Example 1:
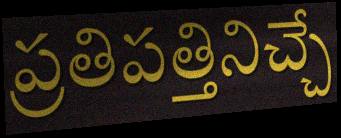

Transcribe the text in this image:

ప్రతిపత్తినిచ్చే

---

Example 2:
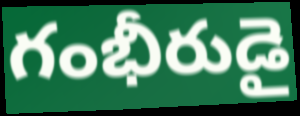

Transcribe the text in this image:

గంభీరుడై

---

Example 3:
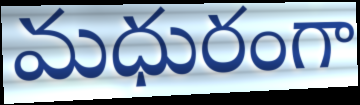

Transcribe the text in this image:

మధురంగా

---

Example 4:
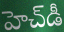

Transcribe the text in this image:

హెచ్‌డీ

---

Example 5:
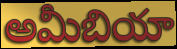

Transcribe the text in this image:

అమీబియా